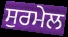
ਸੁਰਮੇਲ